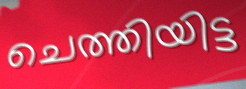
ചെത്തിയിട്ട